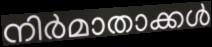
നിർമാതാക്കൾ